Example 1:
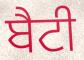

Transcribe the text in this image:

ਬੈਟੀ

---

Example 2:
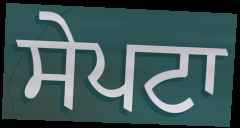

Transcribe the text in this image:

ਸੇਪਟਾ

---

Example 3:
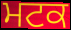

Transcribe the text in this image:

ਮਟਕ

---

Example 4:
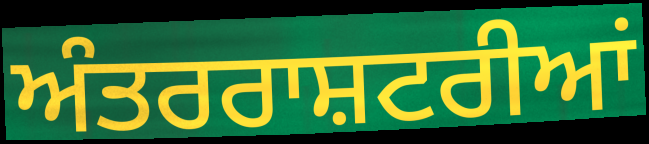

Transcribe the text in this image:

ਅੰਤਰਰਾਸ਼ਟਰੀਆਂ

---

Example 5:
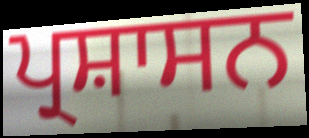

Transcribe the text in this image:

ਪ੍ਰਸ਼ਾਸਨ